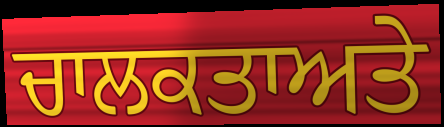
ਚਾਲਕਤਾਅਤੇ